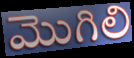
మొగిలి